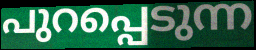
പുറപ്പെടുന്ന